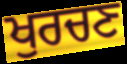
ਖੁਰਚਣ